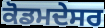
ਕੋਡਮਦੇਸਰ